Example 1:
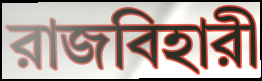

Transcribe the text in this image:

রাজবিহারী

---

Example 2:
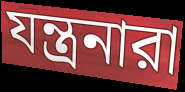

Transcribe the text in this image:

যন্ত্রনারা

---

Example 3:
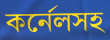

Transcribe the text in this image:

কর্নেলসহ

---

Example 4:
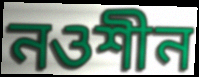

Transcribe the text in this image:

নওশীন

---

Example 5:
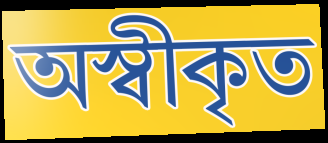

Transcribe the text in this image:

অস্বীকৃত